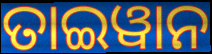
ତାଇୱାନ